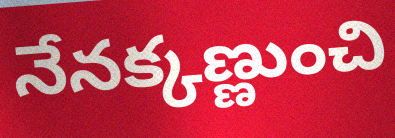
నేనక్కణ్ణుంచి